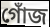
গোঁজ